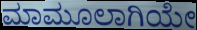
ಮಾಮೂಲಾಗಿಯೇ